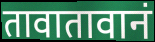
तावातावानं